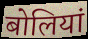
बोलियां